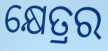
କ୍ଷେତ୍ରର